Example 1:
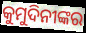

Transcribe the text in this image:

କୁମୁଦିନୀଙ୍କର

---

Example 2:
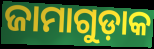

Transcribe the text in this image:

ଜାମାଗୁଡ଼ାକ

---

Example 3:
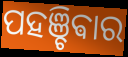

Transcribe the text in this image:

ପହଞ୍ଚିଵାର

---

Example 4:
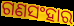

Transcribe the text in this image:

ଗଣସଂହାର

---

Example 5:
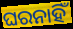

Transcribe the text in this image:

ଘରନାହିଁ